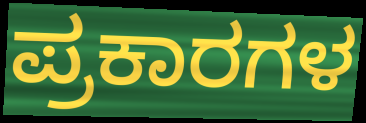
ಪ್ರಕಾರಗಳ